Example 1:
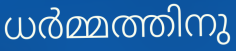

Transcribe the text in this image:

ധർമ്മത്തിനു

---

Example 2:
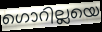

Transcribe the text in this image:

ഗൊറില്ലയെ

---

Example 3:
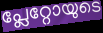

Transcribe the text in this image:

പ്ലേറ്റോയുടെ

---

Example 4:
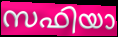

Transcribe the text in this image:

സഫിയാ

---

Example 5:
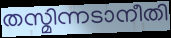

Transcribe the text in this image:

തസ്മിന്നടാനീതി